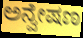
ಅನ್ವೇಷಣ